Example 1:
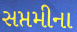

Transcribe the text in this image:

સપ્તમીના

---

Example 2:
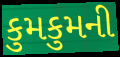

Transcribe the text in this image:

કુમકુમની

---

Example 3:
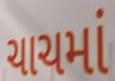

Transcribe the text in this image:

ચાચમાં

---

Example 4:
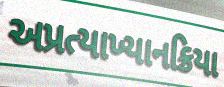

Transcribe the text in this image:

અપ્રત્યાખ્યાનક્રિયા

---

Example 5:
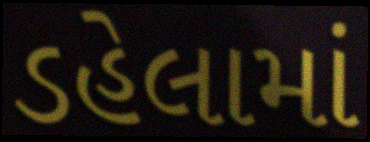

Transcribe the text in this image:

ડહેલામાં